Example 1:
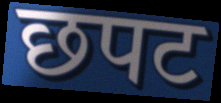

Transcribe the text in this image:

छपट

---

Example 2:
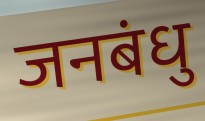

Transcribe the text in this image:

जनबंधु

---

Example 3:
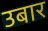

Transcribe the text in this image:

उबार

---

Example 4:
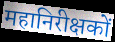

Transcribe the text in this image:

महानिरीक्षकों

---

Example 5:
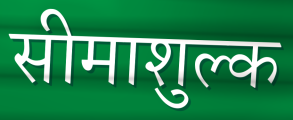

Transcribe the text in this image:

सीमाशुल्क